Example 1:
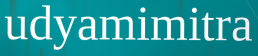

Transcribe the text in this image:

udyamimitra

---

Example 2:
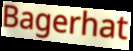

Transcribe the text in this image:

Bagerhat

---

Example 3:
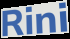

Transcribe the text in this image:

Rini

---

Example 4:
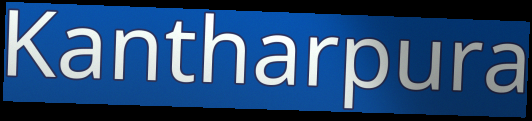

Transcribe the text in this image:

Kantharpura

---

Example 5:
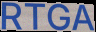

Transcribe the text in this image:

RTGA